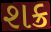
શક્ર